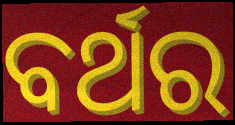
ବର୍ଥର